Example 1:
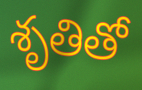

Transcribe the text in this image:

శృతితో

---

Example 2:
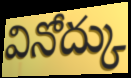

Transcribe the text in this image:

వినోద్కు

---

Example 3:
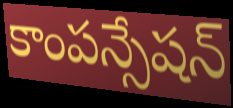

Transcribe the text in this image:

కాంపన్సేషన్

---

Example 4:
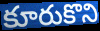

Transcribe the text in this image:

కూరుకొని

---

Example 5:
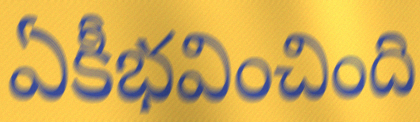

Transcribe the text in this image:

ఏకీభవించింది